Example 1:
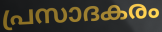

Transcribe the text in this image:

പ്രസാദകരം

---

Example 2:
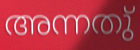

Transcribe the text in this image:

അന്നതു്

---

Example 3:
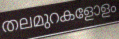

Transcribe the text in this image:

തലമുറകളോളം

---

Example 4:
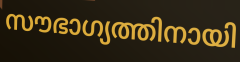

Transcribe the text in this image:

സൗഭാഗ്യത്തിനായി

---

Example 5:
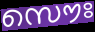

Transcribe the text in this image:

സൌഃ